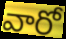
వారో